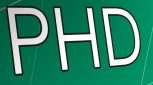
PHD